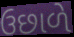
ઉછાળે